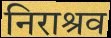
निराश्रव